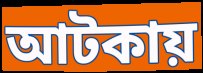
আটকায়